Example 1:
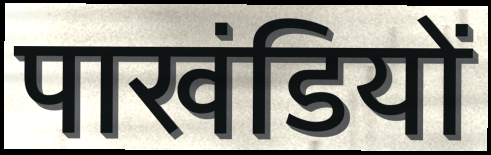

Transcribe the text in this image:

पाखंडियों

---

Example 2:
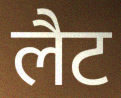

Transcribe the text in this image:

लैट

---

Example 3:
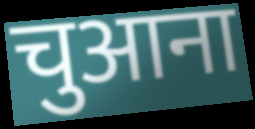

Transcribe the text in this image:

चुआना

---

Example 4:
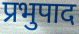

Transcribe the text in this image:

प्रभुपाद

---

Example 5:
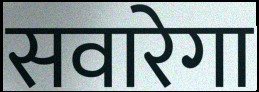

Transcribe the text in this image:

सवारेगा